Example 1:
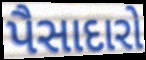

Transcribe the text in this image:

પૈસાદારો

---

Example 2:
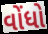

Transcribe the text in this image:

વોંધો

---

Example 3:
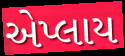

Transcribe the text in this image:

એપ્લાય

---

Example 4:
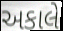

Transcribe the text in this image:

અકાલે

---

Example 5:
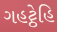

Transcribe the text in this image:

ગહટ્ઠેહિ